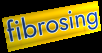
fibrosing